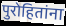
पुरोहितांना